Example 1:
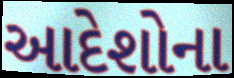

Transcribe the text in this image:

આદેશોના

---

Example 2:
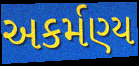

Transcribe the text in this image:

અકર્મણ્ય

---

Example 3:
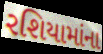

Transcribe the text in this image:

રશિયામાંના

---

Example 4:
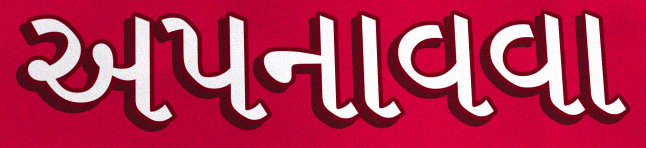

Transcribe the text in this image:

અપનાવવા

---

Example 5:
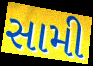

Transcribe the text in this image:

સામી